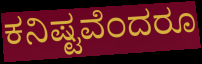
ಕನಿಷ್ಟವೆಂದರೂ